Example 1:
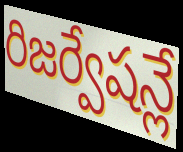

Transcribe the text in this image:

రిజర్వేషన్లే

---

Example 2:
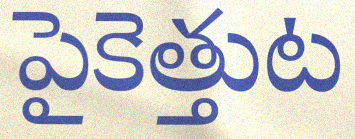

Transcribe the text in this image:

పైకెత్తుట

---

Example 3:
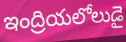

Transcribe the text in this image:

ఇంద్రియలోలుడై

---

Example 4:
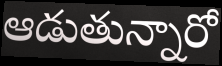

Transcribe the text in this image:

ఆడుతున్నారో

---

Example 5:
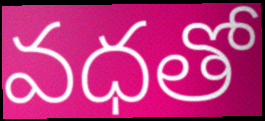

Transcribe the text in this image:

వధతో